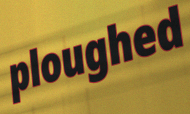
ploughed